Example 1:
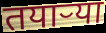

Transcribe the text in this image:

तयाऱ्या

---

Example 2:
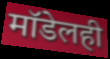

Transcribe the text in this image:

मॉडेलही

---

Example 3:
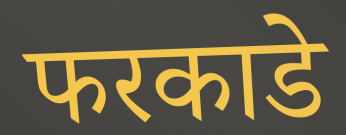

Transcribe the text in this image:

फरकाडे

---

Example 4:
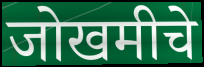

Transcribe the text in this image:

जोखमीचे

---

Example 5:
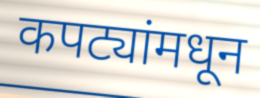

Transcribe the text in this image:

कपट्यांमधून